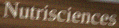
Nutrisciences